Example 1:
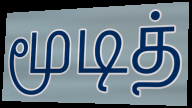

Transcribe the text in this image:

மூடித்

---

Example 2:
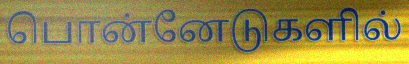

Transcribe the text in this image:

பொன்னேடுகளில்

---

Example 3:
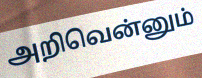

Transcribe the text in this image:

அறிவென்னும்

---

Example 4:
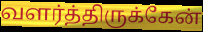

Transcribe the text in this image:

வளர்த்திருக்கேன்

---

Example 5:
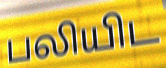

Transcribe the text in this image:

பலியிட